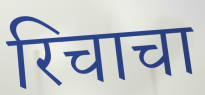
रिचाचा